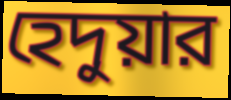
হেদুয়ার